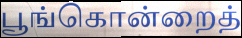
பூங்கொன்றைத்